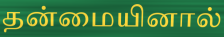
தன்மையினால்